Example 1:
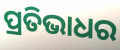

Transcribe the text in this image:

ପ୍ରତିଭାଧର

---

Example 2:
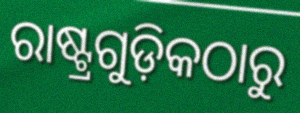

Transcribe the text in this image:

ରାଷ୍ଟ୍ରଗୁଡ଼ିକଠାରୁ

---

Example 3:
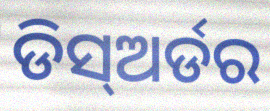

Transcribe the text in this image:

ଡିସ୍ଅର୍ଡର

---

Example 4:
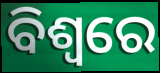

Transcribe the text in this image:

ବିଶ୍ଵରେ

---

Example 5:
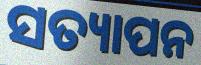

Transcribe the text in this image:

ସତ୍ୟାପନ